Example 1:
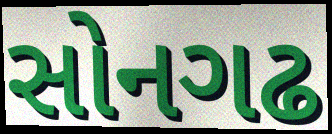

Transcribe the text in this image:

સોનગઢ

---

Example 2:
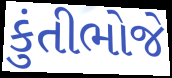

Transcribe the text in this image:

કુંતીભોજે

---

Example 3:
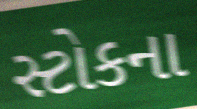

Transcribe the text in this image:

સ્ટોકના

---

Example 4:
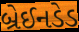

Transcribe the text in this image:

બ્રેઈનડેડ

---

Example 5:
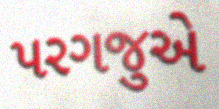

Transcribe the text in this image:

પરગજુએ